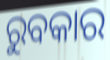
ରୁବକାର